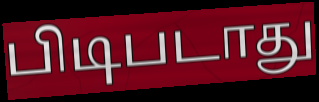
பிடிபடாது